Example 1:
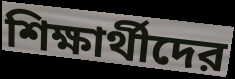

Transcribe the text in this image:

শিক্ষার্থীদের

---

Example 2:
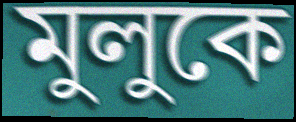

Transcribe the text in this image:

মুলুকে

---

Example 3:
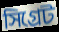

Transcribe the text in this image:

সিগ্রেট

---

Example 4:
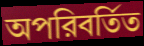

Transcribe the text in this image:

অপরিবর্তিত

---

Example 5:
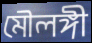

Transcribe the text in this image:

মৌলঙ্গী